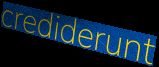
crediderunt